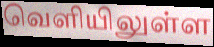
வெளியிலுள்ள